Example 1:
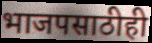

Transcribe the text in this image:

भाजपसाठीही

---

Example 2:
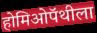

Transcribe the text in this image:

होमिओपॅथीला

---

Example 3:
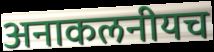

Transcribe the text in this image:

अनाकलनीयच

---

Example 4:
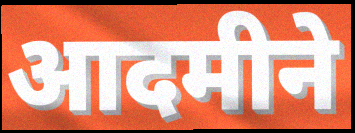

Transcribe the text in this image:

आदमीने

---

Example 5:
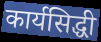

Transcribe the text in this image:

कार्यसिद्धी